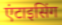
एंटाइसिंग